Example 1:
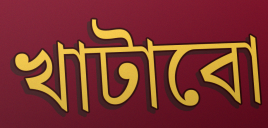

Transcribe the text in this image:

খাটাবো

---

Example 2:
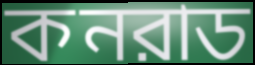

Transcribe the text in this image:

কনরাড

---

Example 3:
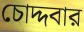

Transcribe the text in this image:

চোদ্দবার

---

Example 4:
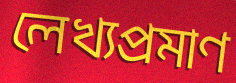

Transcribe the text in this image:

লেখ্যপ্রমাণ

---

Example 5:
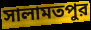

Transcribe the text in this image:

সালামতপুর